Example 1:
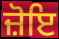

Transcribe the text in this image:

ਜ਼ੋਇ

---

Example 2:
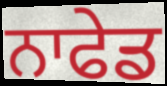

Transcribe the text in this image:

ਨਾਫੇਡ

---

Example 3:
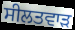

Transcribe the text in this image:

ਸੀਲਤਵਾੜ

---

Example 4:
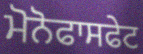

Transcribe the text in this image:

ਮੋਨੋਫਾਸਫੇਟ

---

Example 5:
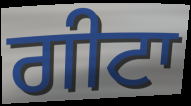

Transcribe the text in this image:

ਗੀਟਾ